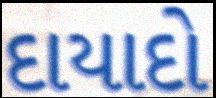
દાયાદો